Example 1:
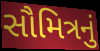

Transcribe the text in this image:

સૌમિત્રનું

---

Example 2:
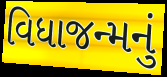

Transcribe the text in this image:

વિધાજન્મનું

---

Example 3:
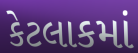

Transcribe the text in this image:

કેટલાકમાં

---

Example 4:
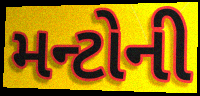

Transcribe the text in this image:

મન્ટોની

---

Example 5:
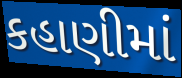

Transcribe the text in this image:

કહાણીમાં